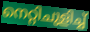
നെറ്റിചുളിച്ച്